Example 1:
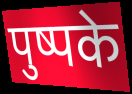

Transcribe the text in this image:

पुष्पके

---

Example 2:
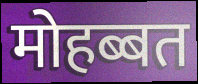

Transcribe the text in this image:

मोहब्बत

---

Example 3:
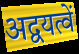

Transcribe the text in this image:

अद्वयत्वें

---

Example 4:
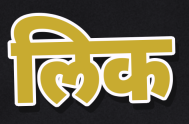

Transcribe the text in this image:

लिक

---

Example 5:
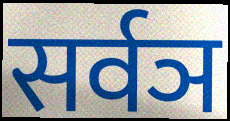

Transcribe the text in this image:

सर्वञ